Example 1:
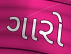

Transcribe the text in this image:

ગારો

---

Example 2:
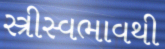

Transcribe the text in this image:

સ્ત્રીસ્વભાવથી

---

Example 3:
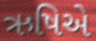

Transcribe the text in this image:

ઋષિએ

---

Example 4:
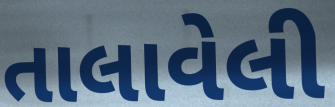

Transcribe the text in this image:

તાલાવેલી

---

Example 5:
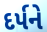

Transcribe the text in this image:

દર્પને